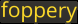
foppery